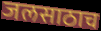
जलसाठाच